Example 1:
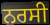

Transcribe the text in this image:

ਨਰਸੀ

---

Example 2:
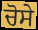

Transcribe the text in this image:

ਚੋਸੇ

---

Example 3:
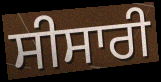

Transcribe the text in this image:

ਸੀਸਾਰੀ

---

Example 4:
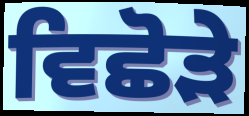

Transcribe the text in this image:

ਵਿਛੋੜੇ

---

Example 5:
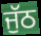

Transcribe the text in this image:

ਜੁੱਠ